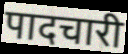
पादचारी